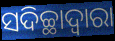
ସଦିଚ୍ଛାଦ୍ୱାରା